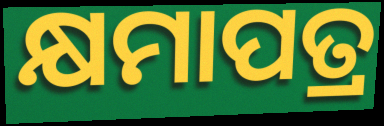
କ୍ଷମାପତ୍ର